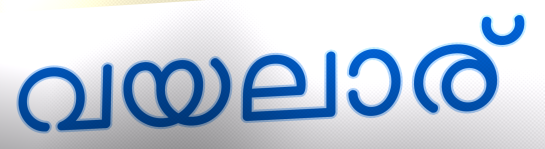
വയലാര്